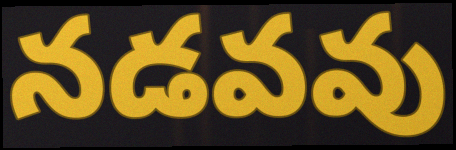
నడవవు